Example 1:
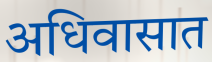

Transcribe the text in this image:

अधिवासात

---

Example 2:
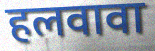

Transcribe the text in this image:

हलवावा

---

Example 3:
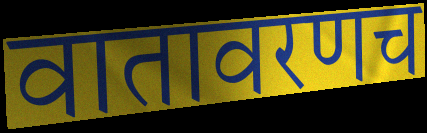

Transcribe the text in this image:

वातावरणच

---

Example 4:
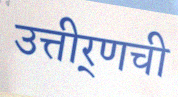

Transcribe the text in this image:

उत्तीर्णची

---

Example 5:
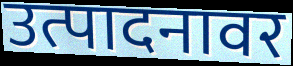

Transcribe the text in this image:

उत्पादनावर